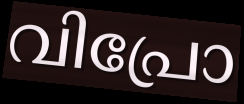
വിപ്രോ